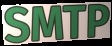
SMTP